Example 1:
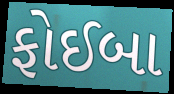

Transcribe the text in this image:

ફોઈબા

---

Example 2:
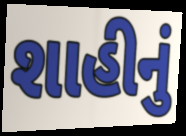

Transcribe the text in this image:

શાહીનું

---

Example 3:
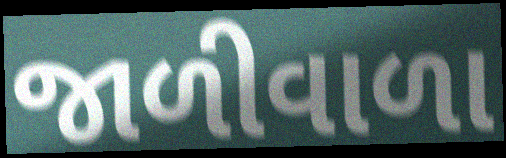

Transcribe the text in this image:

જાળીવાળા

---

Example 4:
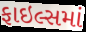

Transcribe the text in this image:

ફાઇલ્સમાં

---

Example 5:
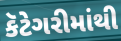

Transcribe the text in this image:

કૅટેગરીમાંથી